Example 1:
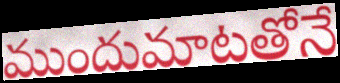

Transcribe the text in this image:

ముందుమాటతోనే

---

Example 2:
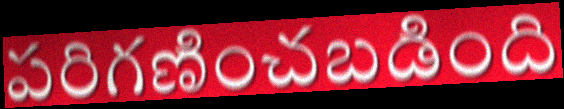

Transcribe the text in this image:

పరిగణించబడింది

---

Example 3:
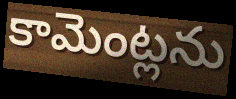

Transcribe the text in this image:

కామెంట్లను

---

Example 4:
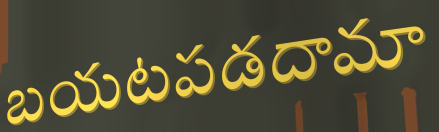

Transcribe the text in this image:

బయటపడదామా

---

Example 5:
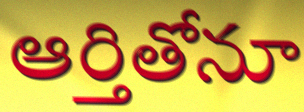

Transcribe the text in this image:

ఆర్తితోనూ